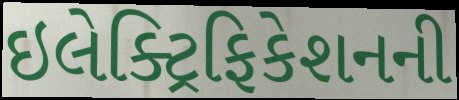
ઇલેક્ટ્રિફિકેશનની